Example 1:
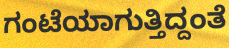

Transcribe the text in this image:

ಗಂಟೆಯಾಗುತ್ತಿದ್ದಂತೆ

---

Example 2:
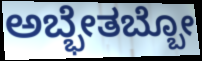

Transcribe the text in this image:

ಅಬ್ಭೇತಬ್ಬೋ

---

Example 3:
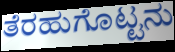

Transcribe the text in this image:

ತೆರಹುಗೊಟ್ಟನು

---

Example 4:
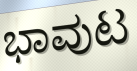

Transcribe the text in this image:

ಭಾವುಟ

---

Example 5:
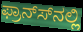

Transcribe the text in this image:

ಫ್ರಾನ್ಸ್‍ನಲ್ಲಿ